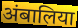
अंबालिया